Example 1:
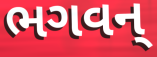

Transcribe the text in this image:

ભગવન્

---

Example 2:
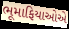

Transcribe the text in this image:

ભૂમાફિયાઓએ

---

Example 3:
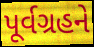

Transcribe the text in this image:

પૂર્વગ્રહને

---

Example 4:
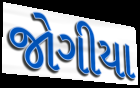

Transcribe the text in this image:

જોગીયા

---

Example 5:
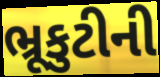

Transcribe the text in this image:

ભ્રૂકુટીની